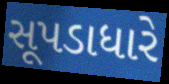
સૂપડાધારે